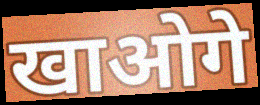
खाओगे